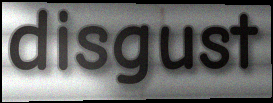
disgust